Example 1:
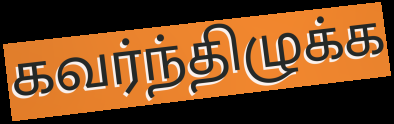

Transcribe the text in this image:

கவர்ந்திழுக்க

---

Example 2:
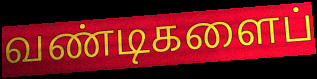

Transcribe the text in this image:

வண்டிகளைப்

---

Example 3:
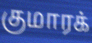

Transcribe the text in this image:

குமாரக்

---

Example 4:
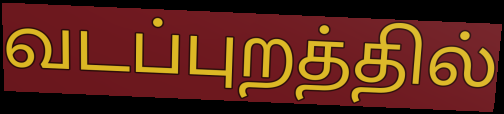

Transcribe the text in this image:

வடப்புறத்தில்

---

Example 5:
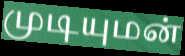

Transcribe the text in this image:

முடியுமன்